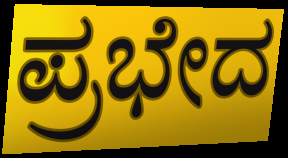
ಪ್ರಭೇದ